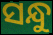
ସନ୍ଧୁ